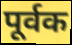
पूर्वक